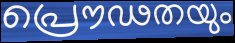
പ്രൌഢതയും